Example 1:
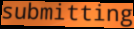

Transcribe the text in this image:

submitting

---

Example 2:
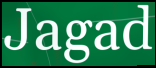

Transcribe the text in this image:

Jagad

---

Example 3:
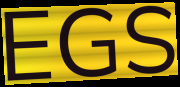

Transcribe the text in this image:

EGS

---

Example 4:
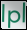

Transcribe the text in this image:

Ipl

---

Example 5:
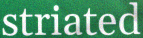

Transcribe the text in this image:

striated